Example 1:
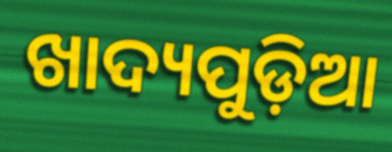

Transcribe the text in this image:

ଖାଦ୍ୟପୁଡ଼ିଆ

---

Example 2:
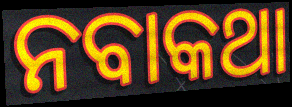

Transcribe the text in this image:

ନବାକଥା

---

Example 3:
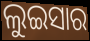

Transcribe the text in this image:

ଲୁଇସାର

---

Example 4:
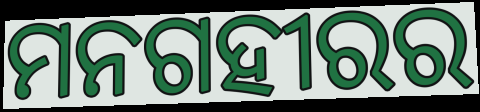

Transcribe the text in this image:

ମନଗହୀରର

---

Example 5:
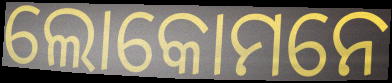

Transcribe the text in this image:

ଲୋକୋମନେ